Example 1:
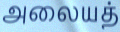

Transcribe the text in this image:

அலையத்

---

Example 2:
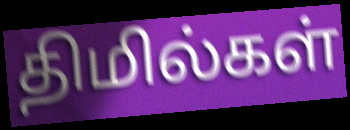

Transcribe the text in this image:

திமில்கள்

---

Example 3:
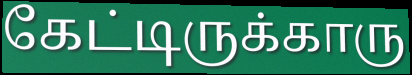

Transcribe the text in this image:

கேட்டிருக்காரு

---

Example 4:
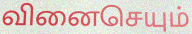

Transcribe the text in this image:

வினைசெயும்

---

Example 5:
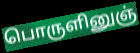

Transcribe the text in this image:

பொருளினுஞ்